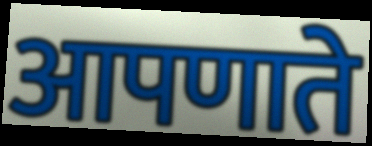
आपणाते